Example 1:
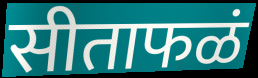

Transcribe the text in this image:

सीताफळं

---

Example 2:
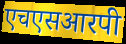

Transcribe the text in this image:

एचएसआरपी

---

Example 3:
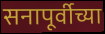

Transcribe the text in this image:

सनापूर्वीच्या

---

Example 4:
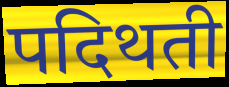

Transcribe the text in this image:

पदिथती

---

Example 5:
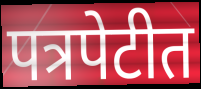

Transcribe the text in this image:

पत्रपेटीत